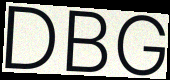
DBG